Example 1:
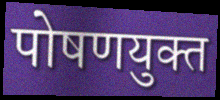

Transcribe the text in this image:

पोषणयुक्‍त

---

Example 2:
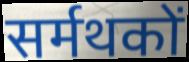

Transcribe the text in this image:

सर्मथकों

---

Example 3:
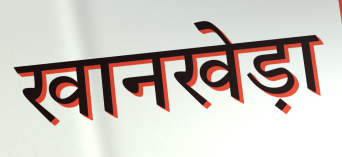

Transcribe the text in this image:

खानखेड़ा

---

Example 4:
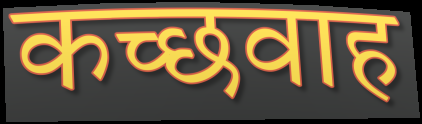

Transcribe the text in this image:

कच्छवाह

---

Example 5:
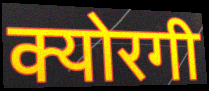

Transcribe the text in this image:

क्योरगी